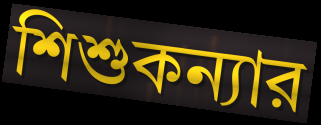
শিশুকন্যার